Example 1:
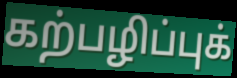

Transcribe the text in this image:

கற்பழிப்புக்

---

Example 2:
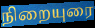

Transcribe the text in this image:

நிறையுரை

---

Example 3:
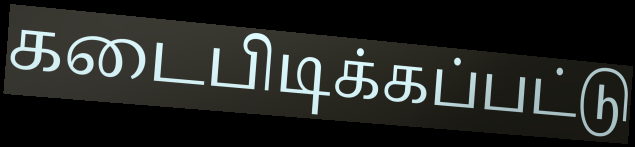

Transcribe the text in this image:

கடைபிடிக்கப்பட்டு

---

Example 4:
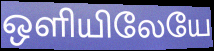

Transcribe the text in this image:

ஒளியிலேயே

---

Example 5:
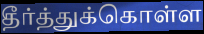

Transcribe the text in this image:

தீர்த்துக்கொள்ள